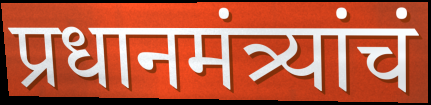
प्रधानमंत्र्यांचं